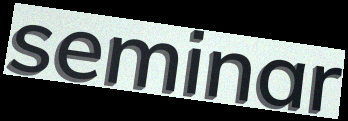
seminar